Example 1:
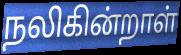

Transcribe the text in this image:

நலிகின்றாள்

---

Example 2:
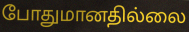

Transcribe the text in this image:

போதுமானதில்லை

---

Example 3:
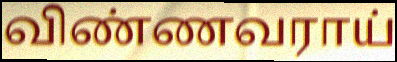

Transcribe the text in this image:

விண்ணவராய்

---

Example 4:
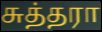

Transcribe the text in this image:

சுத்தரா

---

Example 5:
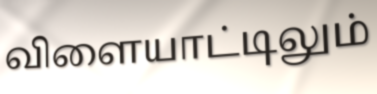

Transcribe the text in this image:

விளையாட்டிலும்